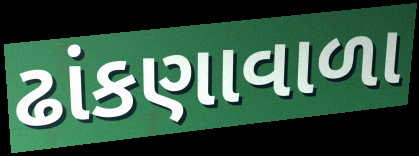
ઢાંકણાવાળા